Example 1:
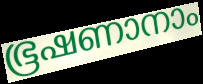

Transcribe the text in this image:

ഭൂഷണാനാം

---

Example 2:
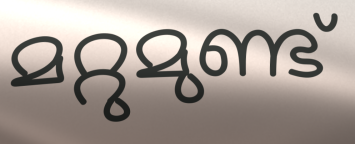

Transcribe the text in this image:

മറ്റുമുണ്ട്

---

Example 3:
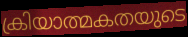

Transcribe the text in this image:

ക്രിയാത്മകതയുടെ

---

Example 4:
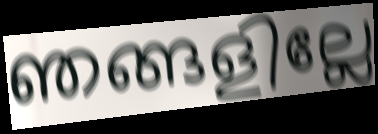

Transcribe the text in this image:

ഞങ്ങളില്ലേ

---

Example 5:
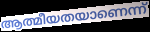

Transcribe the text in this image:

ആത്മീയതയാണെന്ന്